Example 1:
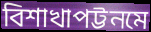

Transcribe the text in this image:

বিশাখাপট্টনমে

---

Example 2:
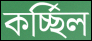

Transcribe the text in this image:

কর্চ্ছিল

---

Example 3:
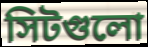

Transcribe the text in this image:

সিটগুলো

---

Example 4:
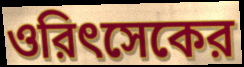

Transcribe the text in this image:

ওরিৎসেকের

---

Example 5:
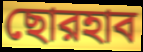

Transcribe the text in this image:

ছোরহাব